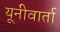
यूनीवार्ता